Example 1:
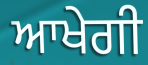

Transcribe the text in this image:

ਆਖੇਗੀ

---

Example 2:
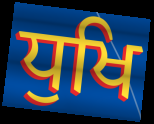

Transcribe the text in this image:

ਧੁਖਿ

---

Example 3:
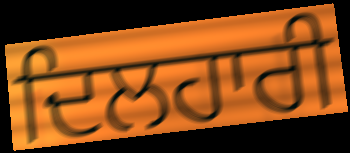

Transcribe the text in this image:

ਦਿਲਹਾਰੀ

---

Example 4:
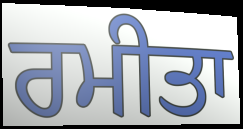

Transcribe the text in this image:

ਰਮੀਤਾ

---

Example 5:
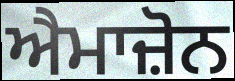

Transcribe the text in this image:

ਐਮਾਜ਼ੋਨ